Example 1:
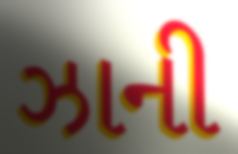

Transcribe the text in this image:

ઝાની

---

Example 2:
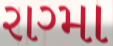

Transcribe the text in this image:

રાગ્મા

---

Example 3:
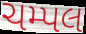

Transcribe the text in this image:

ચમ્પલ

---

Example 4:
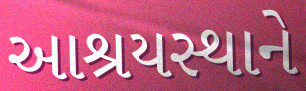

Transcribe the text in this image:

આશ્રયસ્થાને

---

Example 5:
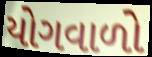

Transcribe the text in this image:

યોગવાળો